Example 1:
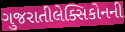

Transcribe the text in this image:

ગુજરાતીલેક્સિકોનની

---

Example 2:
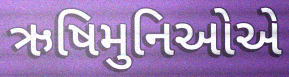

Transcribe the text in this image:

ઋષિમુનિઓએ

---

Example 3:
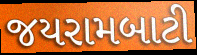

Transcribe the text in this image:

જયરામબાટી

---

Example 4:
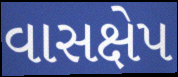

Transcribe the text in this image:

વાસક્ષેપ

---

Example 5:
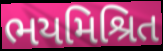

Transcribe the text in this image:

ભયમિશ્રિત